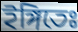
ইঙ্গিতেঃ